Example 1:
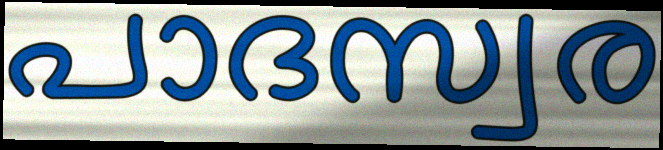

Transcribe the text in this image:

പാദസ്വര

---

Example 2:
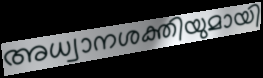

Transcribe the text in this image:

അധ്വാനശക്തിയുമായി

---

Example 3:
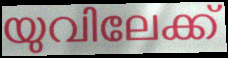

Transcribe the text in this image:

യുവിലേക്ക്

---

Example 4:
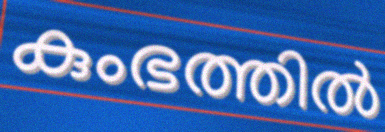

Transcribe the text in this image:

കുംഭത്തിൽ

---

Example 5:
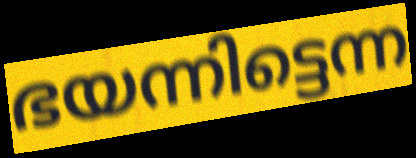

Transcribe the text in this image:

ഭയന്നിട്ടെന്ന